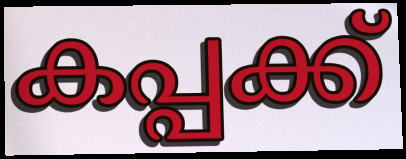
കപ്പക്ക്